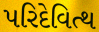
પરિદેવિત્થ